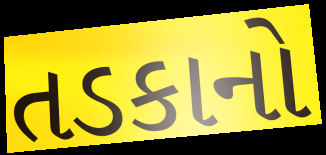
તડકાનો